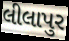
લીલાપુર